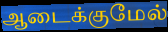
ஆடைக்குமேல்